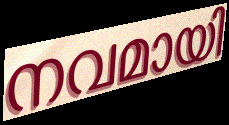
നവമായി